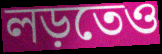
লড়তেও